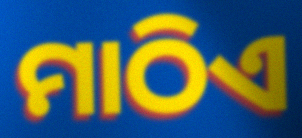
ମାଠିଏ